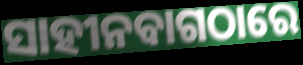
ସାହୀନବାଗଠାରେ